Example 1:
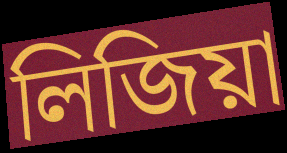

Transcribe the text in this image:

লিজিয়া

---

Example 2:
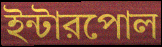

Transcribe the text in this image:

ইন্টারপোল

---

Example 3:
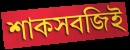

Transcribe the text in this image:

শাকসবজিই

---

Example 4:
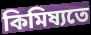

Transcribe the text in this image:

কিমিষ্যতে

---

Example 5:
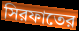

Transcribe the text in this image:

সিরফাতের